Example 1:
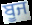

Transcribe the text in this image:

ਬੂਜ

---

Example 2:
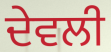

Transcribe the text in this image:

ਦੇਵਲੀ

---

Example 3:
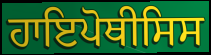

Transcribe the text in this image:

ਹਾਇਪੋਥੀਸਿਸ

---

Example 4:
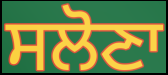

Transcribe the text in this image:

ਸਲੋਣਾ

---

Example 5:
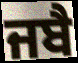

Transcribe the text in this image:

ਜਬੈ